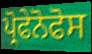
ਪ੍ਰੋਫੇਨੋਫੋਸ